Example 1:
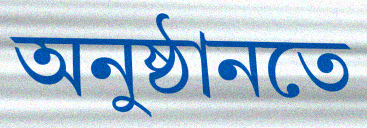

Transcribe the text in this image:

অনুষ্ঠানতে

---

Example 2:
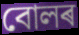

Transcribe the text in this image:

বোলৰ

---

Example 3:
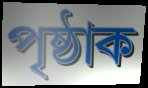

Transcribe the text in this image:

পৃষ্ঠাক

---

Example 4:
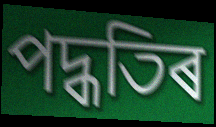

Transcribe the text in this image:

পদ্ধতিৰ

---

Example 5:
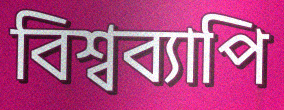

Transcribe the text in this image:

বিশ্বব্যাপি